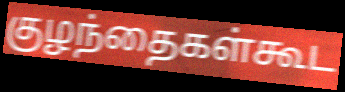
குழந்தைகள்கூட